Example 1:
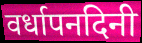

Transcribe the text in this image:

वर्धापनदिनी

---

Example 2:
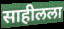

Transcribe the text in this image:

साहीलला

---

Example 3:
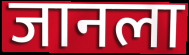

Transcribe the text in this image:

जानला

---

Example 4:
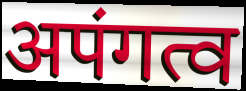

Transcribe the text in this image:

अपंगत्व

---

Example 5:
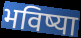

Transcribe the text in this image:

भविष्या